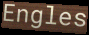
Engles